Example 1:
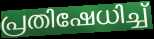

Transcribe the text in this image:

പ്രതിഷേധിച്ച്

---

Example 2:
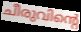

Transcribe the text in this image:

ചീരുവിന്റെ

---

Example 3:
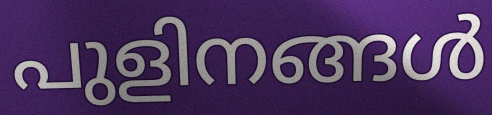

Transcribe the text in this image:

പുളിനങ്ങൾ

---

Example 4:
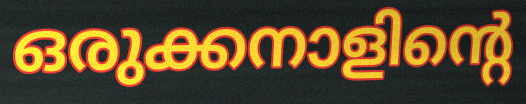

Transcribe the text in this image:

ഒരുക്കനാളിന്റെ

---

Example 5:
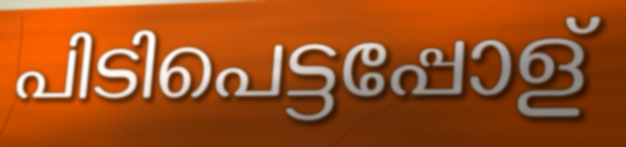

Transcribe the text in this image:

പിടിപെട്ടപ്പോള്